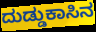
ದುಡ್ಡುಕಾಸಿನ